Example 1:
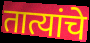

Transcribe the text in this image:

तात्यांचे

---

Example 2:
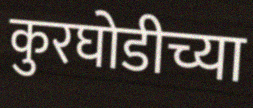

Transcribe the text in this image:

कुरघोडीच्या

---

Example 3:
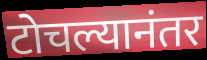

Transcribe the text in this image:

टोचल्यानंतर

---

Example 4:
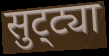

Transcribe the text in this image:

सुट्‌ट्या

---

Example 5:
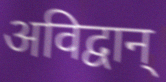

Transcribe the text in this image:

अविद्वान्